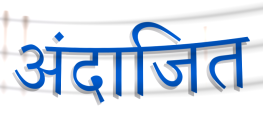
अंदाजित